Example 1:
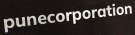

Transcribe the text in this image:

punecorporation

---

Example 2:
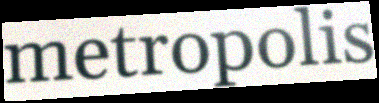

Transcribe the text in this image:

metropolis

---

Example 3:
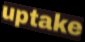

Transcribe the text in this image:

uptake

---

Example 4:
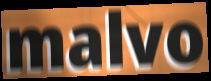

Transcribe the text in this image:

malvo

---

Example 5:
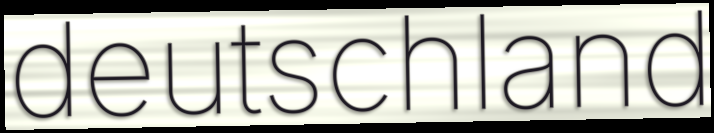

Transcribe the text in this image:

deutschland